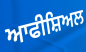
ਆਫੀਸ਼ਿਅਲ